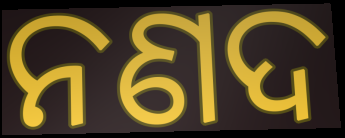
ନଣଦ